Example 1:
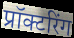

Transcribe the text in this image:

प्रॉक्टरिंग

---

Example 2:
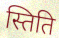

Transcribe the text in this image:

स्तिति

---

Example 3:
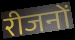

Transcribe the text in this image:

रीजनों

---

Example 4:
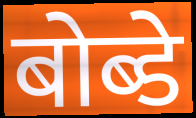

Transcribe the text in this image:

बोब्डे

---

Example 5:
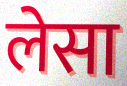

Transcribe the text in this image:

लेसा